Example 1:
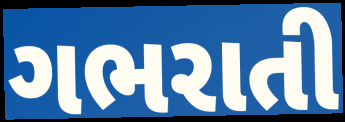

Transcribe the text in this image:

ગભરાતી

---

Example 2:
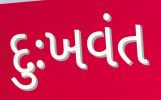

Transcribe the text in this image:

દુઃખવંત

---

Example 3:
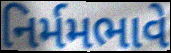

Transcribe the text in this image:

નિર્મમભાવે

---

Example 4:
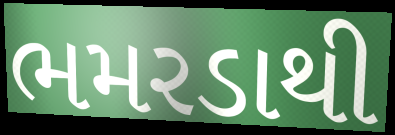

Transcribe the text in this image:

ભમરડાથી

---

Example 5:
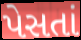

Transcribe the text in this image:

પેસતાં